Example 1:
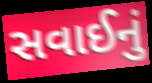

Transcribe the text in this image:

સવાઈનું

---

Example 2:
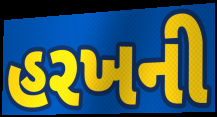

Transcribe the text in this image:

હરખની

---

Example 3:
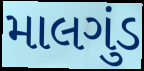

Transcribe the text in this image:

માલગુંડ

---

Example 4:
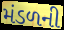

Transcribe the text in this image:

મંડળની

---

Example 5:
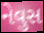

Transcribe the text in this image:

નેવુસ